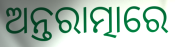
ଅନ୍ତରାତ୍ମାରେ